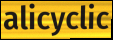
alicyclic